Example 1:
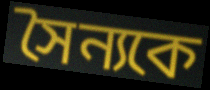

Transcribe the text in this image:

সৈন্যকে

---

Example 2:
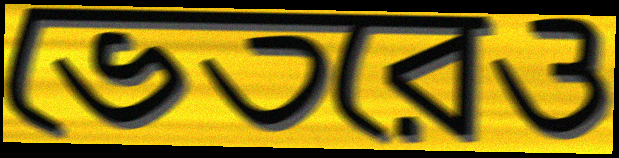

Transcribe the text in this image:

ভেতরেও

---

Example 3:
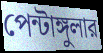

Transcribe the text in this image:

পেন্টাঙ্গুলার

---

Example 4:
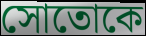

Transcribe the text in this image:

সোতোকে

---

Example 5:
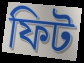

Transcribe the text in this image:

ফিট